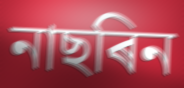
নাছৰিন